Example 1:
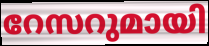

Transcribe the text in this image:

റേസറുമായി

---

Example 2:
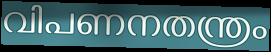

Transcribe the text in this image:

വിപണനതന്ത്രം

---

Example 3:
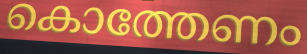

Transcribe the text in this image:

കൊത്തേണം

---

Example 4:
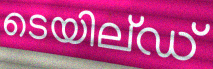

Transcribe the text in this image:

ടെയില്ഡ്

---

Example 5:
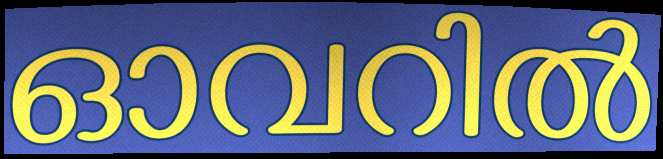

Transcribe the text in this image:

ഓവറിൽ